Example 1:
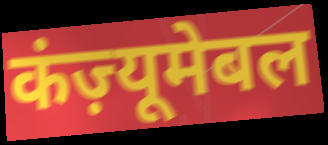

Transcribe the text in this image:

कंज़्यूमेबल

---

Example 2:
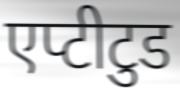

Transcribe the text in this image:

एप्टीटुड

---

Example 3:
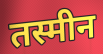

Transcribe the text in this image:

तस्मीन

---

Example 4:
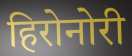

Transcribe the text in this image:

हिरोनोरी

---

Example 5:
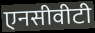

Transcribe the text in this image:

एनसीवीटी